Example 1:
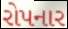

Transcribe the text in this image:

રોપનાર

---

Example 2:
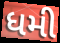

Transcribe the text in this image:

ધમી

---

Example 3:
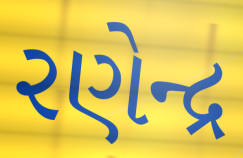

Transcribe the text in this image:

રણેન્દ્ર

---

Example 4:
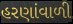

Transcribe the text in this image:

હરણાંવાળી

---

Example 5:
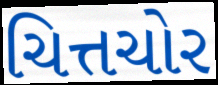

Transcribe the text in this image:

ચિત્તચોર